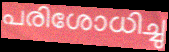
പരിശോധിച്ചു